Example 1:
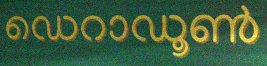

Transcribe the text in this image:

ഡെറാഡൂൺ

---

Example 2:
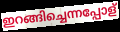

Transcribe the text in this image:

ഇറങ്ങിച്ചെന്നപ്പോള്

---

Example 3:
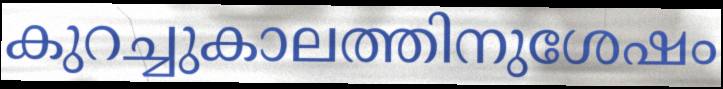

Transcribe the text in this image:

കുറച്ചുകാലത്തിനുശേഷം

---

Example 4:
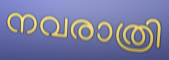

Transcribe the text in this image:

നവരാത്രി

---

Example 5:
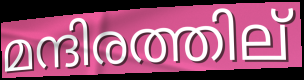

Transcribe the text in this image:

മന്ദിരത്തില്